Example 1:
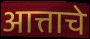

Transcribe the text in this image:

आत्ताचे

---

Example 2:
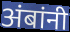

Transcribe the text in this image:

अंबांनी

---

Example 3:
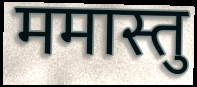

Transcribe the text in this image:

ममास्तु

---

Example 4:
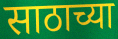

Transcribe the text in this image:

साठाच्या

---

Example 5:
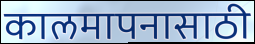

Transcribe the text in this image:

कालमापनासाठी